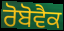
ਰੋਬੋਵੈਕ